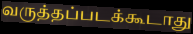
வருத்தப்படக்கூடாது